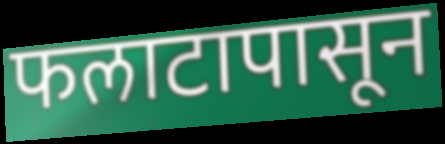
फलाटापासून